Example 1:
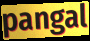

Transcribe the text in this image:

pangal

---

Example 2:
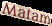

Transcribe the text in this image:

Matam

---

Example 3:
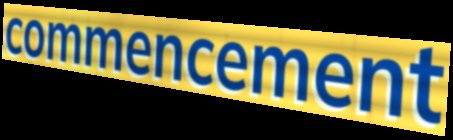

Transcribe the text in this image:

commencement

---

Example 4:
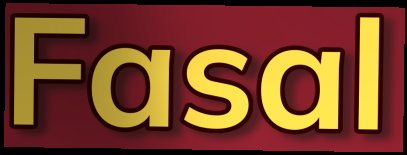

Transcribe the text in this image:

Fasal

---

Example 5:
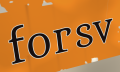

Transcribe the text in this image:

forsv